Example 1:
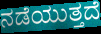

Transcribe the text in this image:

ನಡೆಯುತ್ತದೆ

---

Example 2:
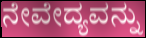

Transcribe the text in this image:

ನೇವೇದ್ಯವನ್ನು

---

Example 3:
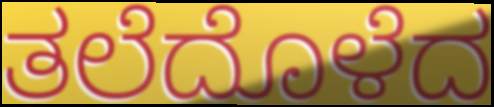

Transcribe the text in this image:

ತಲೆದೊಳೆದ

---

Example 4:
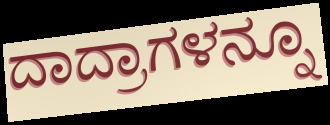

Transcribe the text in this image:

ದಾದ್ರಾಗಳನ್ನೂ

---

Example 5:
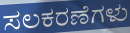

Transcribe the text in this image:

ಸಲಕರಣೆಗಳು